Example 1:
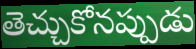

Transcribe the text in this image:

తెచ్చుకోనప్పుడు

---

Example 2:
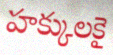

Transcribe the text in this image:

హక్కులకై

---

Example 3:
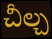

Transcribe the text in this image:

చీల్చ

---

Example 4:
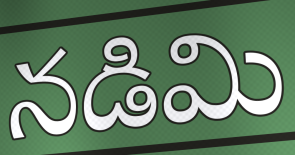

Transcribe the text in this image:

నడిమి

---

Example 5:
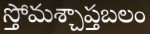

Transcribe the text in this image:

స్తోమశ్చాప్తబలం